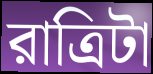
রাত্রিটা